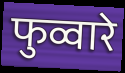
फुव्वारे